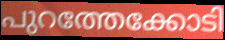
പുറത്തേക്കോടി